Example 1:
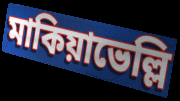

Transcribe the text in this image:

মাকিয়াভেল্লি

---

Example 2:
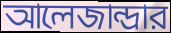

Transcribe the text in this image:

আলেজান্দ্রার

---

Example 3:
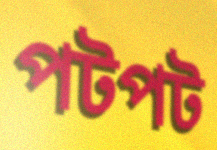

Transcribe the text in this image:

পটপট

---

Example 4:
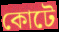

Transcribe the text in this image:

কোটে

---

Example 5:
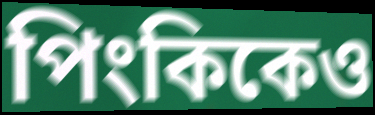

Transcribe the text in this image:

পিংকিকেও